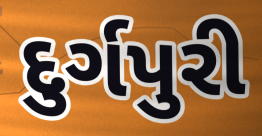
દુર્ગપુરી